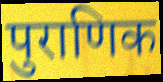
पुराणिक